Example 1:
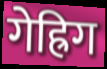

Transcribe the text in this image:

गेह्रिग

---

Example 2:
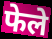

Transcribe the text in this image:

फेले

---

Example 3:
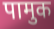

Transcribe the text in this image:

पामुक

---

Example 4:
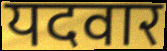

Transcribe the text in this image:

यदवार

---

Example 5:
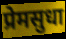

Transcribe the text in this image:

प्रेमसुधा